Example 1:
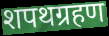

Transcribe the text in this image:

शपथग्रहण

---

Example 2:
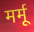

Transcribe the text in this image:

मर्मू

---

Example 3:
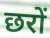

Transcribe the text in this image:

छरों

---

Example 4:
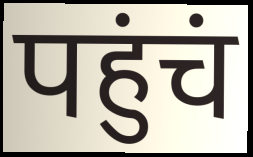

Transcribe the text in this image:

पहुंचं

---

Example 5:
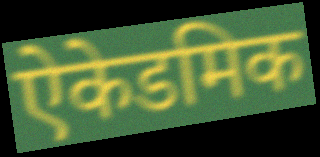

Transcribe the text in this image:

ऐकेडमिक